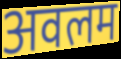
अवलम